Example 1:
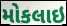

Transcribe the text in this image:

મોકલાઇ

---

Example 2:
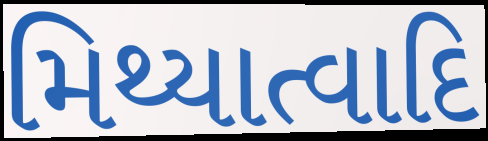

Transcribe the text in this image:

મિથ્યાત્વાદિ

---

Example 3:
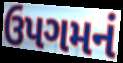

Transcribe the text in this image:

ઉપગમનં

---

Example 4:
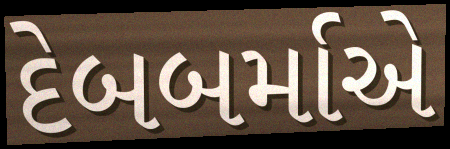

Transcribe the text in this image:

દેબબર્માએ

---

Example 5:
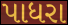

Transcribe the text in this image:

પાધરા